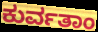
ಕುರ್ವತಾಂ